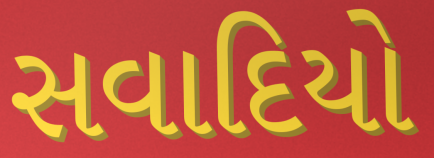
સવાદિયો